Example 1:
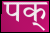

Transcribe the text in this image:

पक्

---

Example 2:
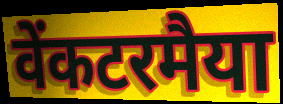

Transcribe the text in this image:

वेंकटरमैया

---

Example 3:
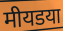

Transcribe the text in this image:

मीयडया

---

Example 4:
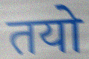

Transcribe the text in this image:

तयो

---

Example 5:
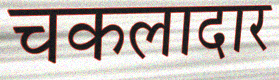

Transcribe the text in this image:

चकलादार